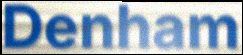
Denham